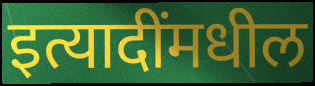
इत्यादींमधील